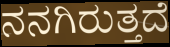
ನನಗಿರುತ್ತದೆ